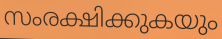
സംരക്ഷിക്കുകയും